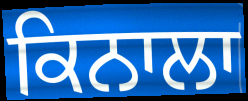
ਕਿਨਾਲਾ